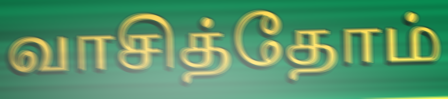
வாசித்தோம்